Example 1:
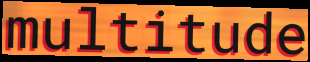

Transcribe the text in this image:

multitude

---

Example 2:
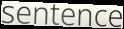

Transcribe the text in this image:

sentence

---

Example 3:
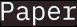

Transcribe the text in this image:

Paper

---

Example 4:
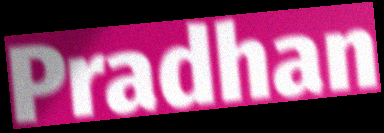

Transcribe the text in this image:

Pradhan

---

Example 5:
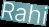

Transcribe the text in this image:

Rahi